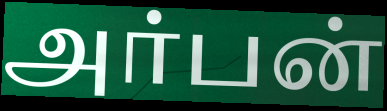
அர்பன்